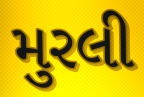
મુરલી